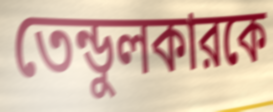
তেন্ডুলকারকে